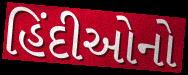
હિંદીઓનો